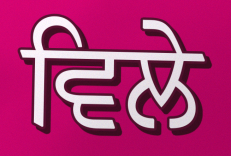
ਵਿਲੇ